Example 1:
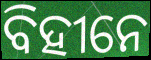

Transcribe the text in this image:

ବିହୀନେ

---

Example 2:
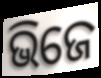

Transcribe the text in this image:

ଭିଜେ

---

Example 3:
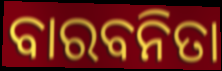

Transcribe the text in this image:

ବାରବନିତା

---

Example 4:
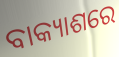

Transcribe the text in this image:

ବାକ୍ୟାଶରେ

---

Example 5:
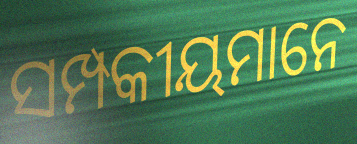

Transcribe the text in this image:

ସମ୍ପକୀୟମାନେ